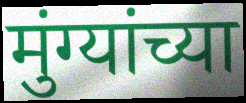
मुंग्यांच्या